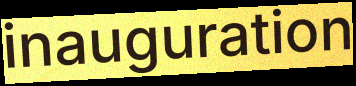
inauguration